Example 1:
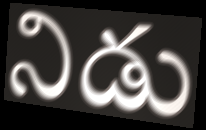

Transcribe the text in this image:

నిడు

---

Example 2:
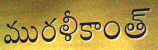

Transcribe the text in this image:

మురళీకాంత్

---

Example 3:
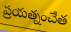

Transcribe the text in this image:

ప్రయత్నంచేత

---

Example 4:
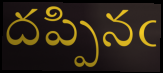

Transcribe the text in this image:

దప్పినఁ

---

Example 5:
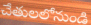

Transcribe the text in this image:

చేతులలోనుండి